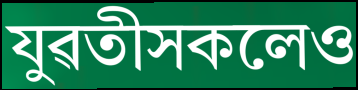
যুৱতীসকলেও